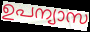
ഉപന്യാസ